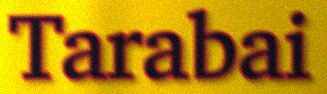
Tarabai